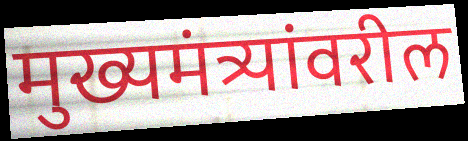
मुख्यमंत्र्यांवरील